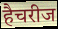
हैचरीज